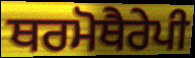
ਥਰਮੋਥੈਰੇਪੀ